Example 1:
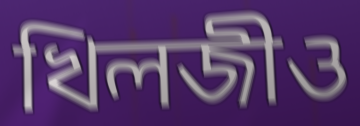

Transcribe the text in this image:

খিলজীও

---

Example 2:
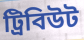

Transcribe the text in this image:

ট্রিবিউট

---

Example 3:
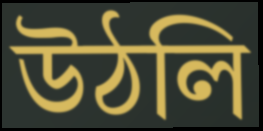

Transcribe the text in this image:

উঠলি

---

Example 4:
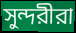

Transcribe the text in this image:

সুন্দরীরা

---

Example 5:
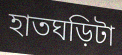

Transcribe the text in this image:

হাতঘড়িটা